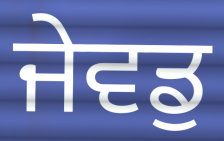
ਜੇਵਡੁ